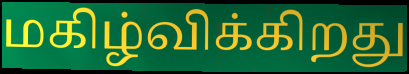
மகிழ்விக்கிறது